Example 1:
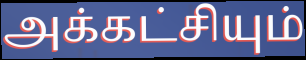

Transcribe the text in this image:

அக்கட்சியும்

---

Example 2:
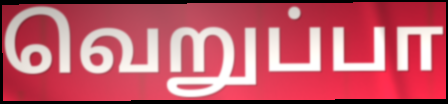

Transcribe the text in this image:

வெறுப்பா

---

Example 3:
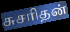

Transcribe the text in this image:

சுசரிதன்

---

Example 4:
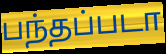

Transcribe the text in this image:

பந்தப்படா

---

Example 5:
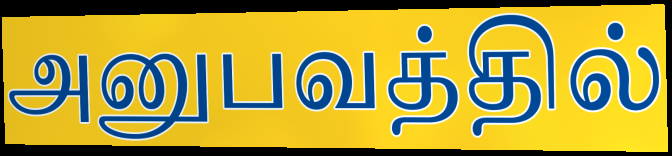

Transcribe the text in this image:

அனுபவத்தில்